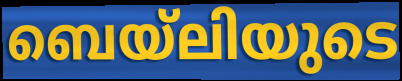
ബെയ്ലിയുടെ